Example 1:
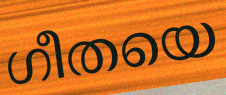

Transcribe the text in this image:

ഗീതയെ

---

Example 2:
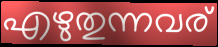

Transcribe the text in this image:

എഴുതുന്നവര്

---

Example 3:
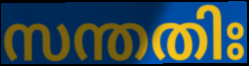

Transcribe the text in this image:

സന്തതിഃ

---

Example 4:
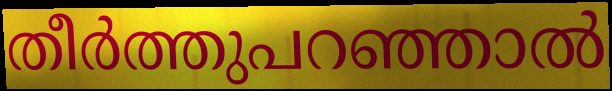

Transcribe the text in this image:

തീർത്തുപറഞ്ഞാൽ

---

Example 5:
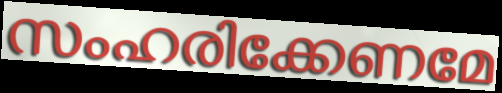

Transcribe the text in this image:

സംഹരിക്കേണമേ